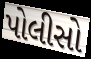
પોલીસો